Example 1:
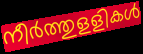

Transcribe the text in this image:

നീർത്തുളളികൾ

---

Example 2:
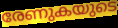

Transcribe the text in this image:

രേണുകയുടെ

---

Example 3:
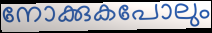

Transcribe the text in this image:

നോക്കുകപോലും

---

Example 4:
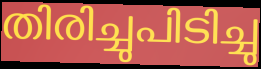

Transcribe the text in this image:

തിരിച്ചുപിടിച്ചു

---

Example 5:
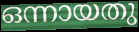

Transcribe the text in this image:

ഒന്നായതു